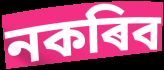
নকৰিব